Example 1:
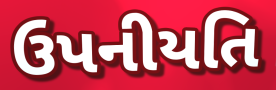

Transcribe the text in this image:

ઉપનીયતિ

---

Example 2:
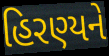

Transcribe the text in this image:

હિરણ્યને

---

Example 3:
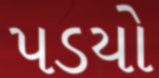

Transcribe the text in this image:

પડયો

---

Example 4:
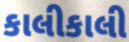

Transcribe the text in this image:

કાલીકાલી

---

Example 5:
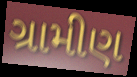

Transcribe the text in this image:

ગ્રામીણ